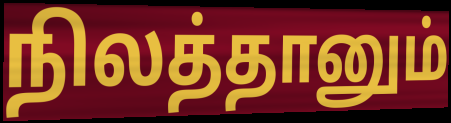
நிலத்தானும்